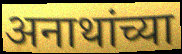
अनाथांच्या